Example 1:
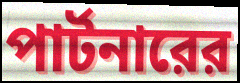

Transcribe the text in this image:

পার্টনারের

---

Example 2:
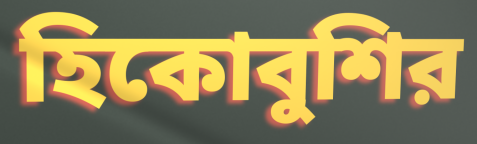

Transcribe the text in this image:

হিকোবুশির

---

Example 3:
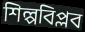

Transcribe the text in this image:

শিল্পবিপ্লব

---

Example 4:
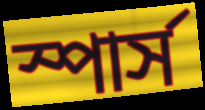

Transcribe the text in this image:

স্পার্স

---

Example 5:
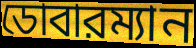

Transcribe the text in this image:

ডোবারম্যান